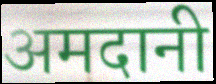
अमदानी